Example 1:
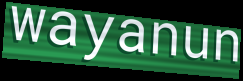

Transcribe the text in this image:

wayanun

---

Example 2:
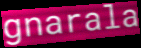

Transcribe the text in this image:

gnarala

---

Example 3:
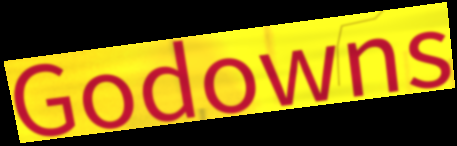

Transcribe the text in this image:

Godowns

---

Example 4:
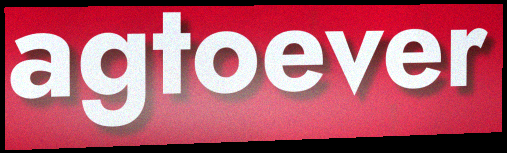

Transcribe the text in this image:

agtoever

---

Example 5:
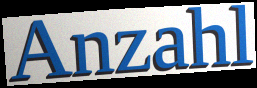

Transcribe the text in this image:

Anzahl